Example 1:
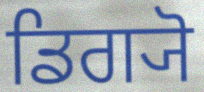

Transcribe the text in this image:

ਡਿਗ੍ਯੋ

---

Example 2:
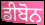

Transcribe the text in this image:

ਡੀਬੋਨ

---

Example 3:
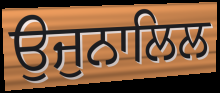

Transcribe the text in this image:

ਉਜੁਨਾਲਿਲ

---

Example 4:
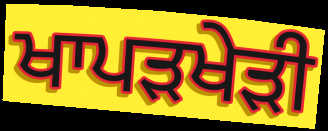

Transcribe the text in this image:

ਖਾਪੜਖੇੜੀ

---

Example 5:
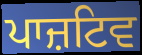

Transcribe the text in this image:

ਪਾਜ਼ਟਿਵ